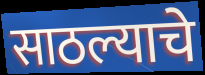
साठल्याचे